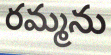
రమ్మను